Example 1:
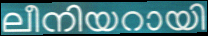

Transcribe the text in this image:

ലീനിയറായി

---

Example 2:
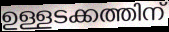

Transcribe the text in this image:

ഉള്ളടക്കത്തിന്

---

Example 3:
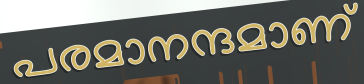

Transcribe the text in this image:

പരമാനന്ദമാണ്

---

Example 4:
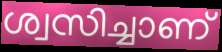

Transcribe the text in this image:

ശ്വസിച്ചാണ്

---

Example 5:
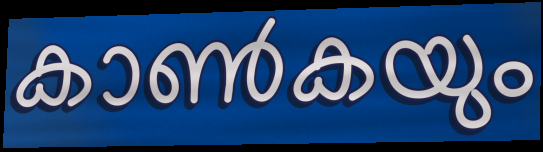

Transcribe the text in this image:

കാൺകയും